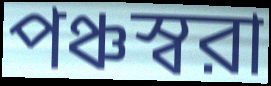
পঞ্চস্বরা